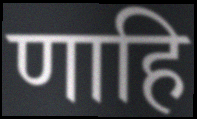
णाहि